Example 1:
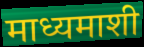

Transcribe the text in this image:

माध्यमाशी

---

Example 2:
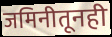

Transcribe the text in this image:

जमिनीतूनही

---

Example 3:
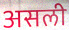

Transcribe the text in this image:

असली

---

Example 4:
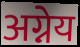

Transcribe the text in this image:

अग्नेय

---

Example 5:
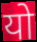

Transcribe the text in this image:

यो